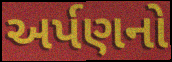
અર્પણનો